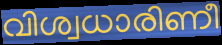
വിശ്വധാരിണീ